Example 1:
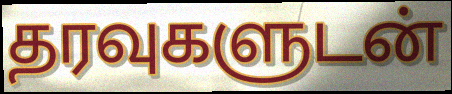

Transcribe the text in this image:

தரவுகளுடன்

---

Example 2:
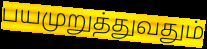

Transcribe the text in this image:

பயமுறுத்துவதும்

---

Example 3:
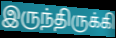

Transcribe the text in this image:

இருந்திருக்கி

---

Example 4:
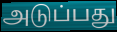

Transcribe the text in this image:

அடுப்பது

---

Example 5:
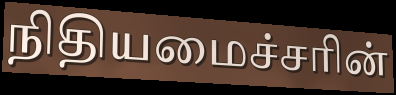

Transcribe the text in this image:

நிதியமைச்சரின்